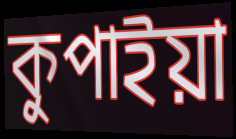
কুপাইয়া